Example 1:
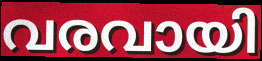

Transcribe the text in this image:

വരവായി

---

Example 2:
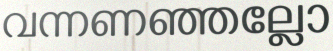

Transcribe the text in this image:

വന്നണഞ്ഞല്ലോ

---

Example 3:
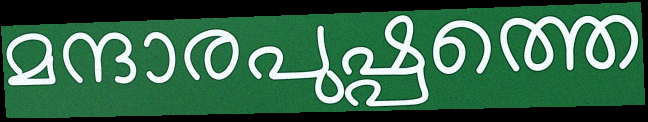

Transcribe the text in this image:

മന്ദാരപുഷ്പത്തെ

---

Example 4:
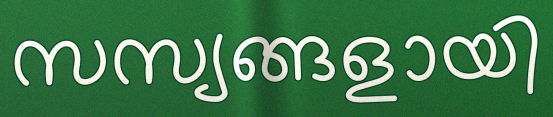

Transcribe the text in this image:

സസ്യങ്ങളായി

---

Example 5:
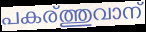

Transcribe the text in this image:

പകര്ത്തുവാന്